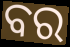
ବର